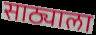
साठ्याला